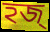
হজ্